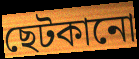
ছেটকানো